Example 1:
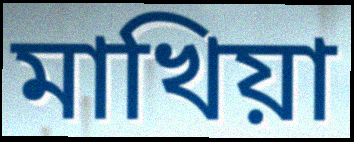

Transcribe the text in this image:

মাখিয়া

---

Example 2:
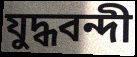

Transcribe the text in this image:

যুদ্ধবন্দী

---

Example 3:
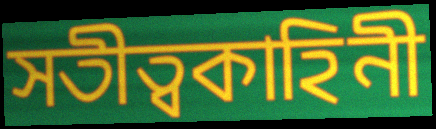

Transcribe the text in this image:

সতীত্বকাহিনী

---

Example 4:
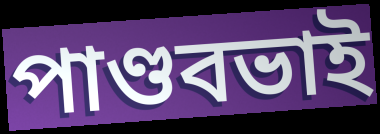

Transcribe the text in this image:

পাণ্ডবভাই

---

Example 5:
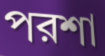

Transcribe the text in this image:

পরশা